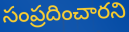
సంప్రదించారని